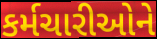
કર્મચારીઓને